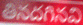
తినదగినవి